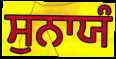
ਸੁਨਾਯੰ